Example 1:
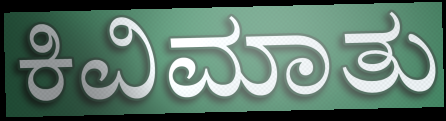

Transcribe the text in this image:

ಕಿವಿಮಾತು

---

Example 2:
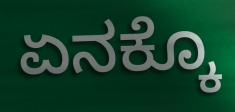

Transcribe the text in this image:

ಏನಕ್ಕೊ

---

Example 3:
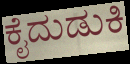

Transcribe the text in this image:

ಕೈದುಡುಕಿ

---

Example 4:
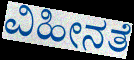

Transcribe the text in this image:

ವಿಹೀನತೆ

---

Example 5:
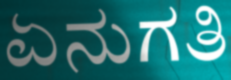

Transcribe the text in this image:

ಏನುಗತಿ